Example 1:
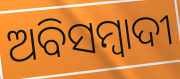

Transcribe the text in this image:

ଅବିସମ୍ବାଦୀ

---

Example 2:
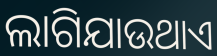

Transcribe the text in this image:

ଲାଗିଯାଉଥାଏ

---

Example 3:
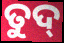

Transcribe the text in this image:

ତୁଦ୍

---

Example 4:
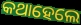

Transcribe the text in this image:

କଥାହେଲେ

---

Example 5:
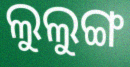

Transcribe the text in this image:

ଲୁଲୁଙ୍ଗ